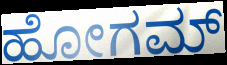
ಹೋಗಮ್